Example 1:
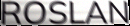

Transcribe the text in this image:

ROSLAN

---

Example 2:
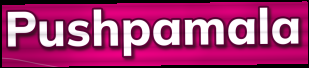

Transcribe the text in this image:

Pushpamala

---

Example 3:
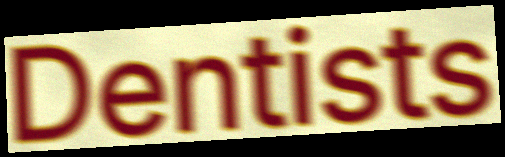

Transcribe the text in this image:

Dentists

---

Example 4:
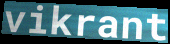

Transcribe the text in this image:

vikrant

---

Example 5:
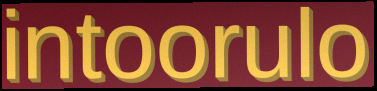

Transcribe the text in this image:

intoorulo